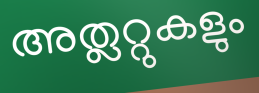
അത്ലറ്റുകളും